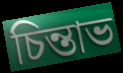
চিন্তাভ